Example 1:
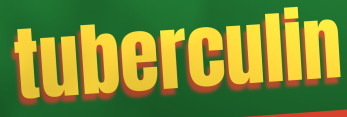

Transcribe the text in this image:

tuberculin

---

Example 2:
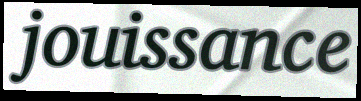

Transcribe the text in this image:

jouissance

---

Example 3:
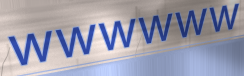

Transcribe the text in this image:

wwwwww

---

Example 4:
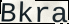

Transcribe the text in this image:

Bkra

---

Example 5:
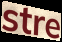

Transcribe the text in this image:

stre